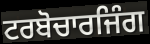
ਟਰਬੋਚਾਰਜਿੰਗ